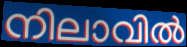
നിലാവിൽ